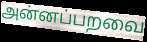
அன்னப்பறவை